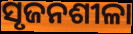
ସୃଜନଶୀଳା